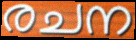
രചന